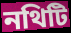
নথিটি